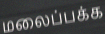
மலைப்பக்க